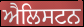
ਐਲਿਸਟਨ